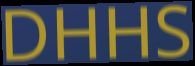
DHHS